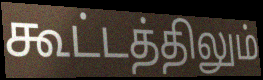
கூட்டத்திலும்